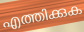
എത്തിക്കുക